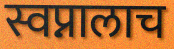
स्वप्नालाच